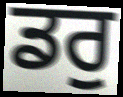
ਡਰੁ